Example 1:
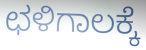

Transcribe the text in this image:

ಛಳಿಗಾಲಕ್ಕೆ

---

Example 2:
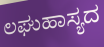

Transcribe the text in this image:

ಲಘುಹಾಸ್ಯದ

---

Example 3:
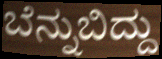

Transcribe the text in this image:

ಬೆನ್ನುಬಿದ್ದು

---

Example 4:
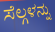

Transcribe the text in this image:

ಸೆಲ್ಗಳನ್ನು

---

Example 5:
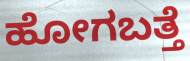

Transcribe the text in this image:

ಹೋಗಬತ್ತೆ